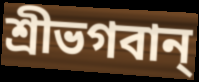
শ্রীভগবান্